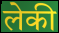
लेकी